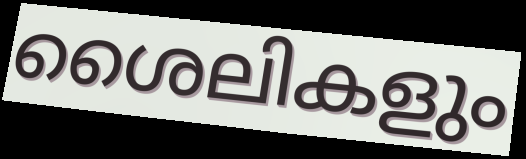
ശൈലികളും